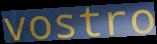
vostro